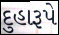
દુહારૂપે